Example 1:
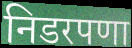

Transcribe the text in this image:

निडरपणा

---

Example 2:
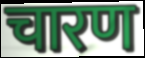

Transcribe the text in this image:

चारण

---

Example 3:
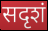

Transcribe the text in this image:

सदृशं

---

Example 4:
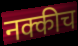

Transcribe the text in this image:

नक्‍कीच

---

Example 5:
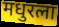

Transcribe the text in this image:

मधुरला